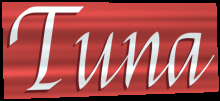
Tuna